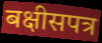
बक्षीसपत्र